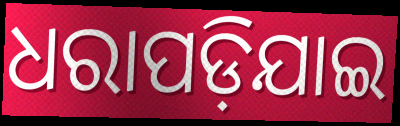
ଧରାପଡ଼ିଯାଇ